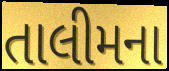
તાલીમના